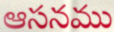
ఆసనము